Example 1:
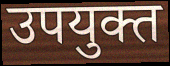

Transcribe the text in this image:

उपयुक्त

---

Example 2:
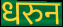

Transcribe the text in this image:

धरुन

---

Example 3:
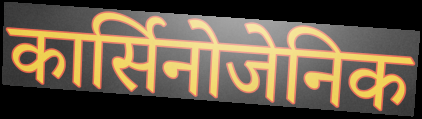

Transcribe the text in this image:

कार्सिनोजेनिक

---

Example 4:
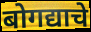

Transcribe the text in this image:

बोगद्याचे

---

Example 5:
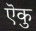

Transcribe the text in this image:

ऎकु